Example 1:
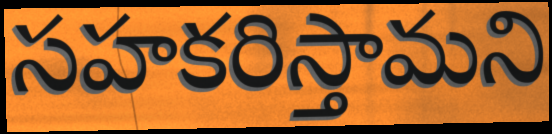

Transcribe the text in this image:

సహకరిస్తామని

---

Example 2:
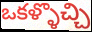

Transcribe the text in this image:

ఒకళ్ళొచ్చి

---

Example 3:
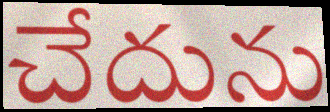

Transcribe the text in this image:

చేదును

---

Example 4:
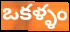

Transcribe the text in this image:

ఒకళ్ళం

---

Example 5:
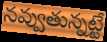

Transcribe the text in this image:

నవ్వుతున్నట్టే